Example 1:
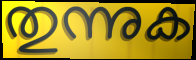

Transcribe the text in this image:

തുന്നുക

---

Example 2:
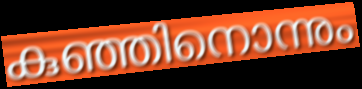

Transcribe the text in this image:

കുഞ്ഞിനൊന്നും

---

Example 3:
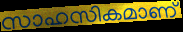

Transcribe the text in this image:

സാഹസികമാണ്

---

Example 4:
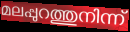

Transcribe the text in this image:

മലപ്പുറത്തുനിന്ന്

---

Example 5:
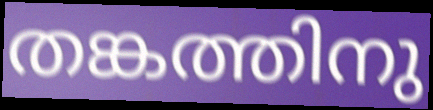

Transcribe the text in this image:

തങ്കത്തിനു